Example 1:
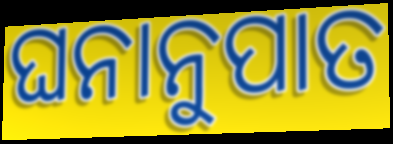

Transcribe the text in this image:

ଘନାନୁପାତ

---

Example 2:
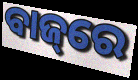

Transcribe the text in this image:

ବାଜ୍‌ରେ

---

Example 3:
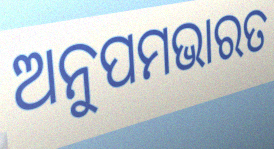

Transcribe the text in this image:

ଅନୁପମଭାରତ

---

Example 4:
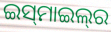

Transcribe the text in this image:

ଇସ୍‌ମାଇଲ୍‌ର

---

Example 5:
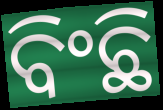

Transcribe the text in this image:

ବିଂଛି